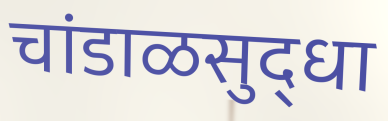
चांडाळसुद्धा